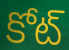
కోట్